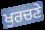
ਖੁਰਚਣੇ